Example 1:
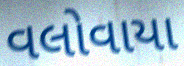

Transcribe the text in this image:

વલોવાયા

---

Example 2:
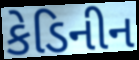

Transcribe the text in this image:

કેડિનીન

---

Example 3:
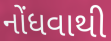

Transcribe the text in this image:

નોંધવાથી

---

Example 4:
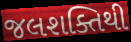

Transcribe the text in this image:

જલશક્તિથી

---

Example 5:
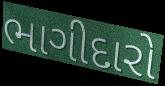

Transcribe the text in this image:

ભાગીદારો